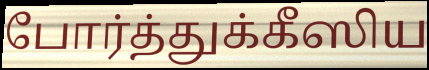
போர்த்துக்கீஸிய